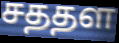
சததள